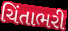
ચિંતાભરી